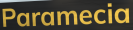
Paramecia